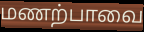
மணற்பாவை